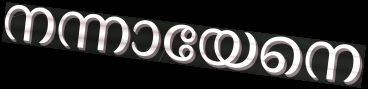
നന്നായേനെ